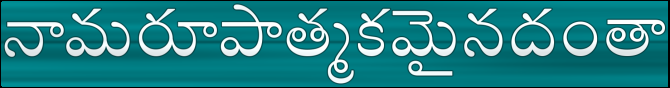
నామరూపాత్మకమైనదంతా